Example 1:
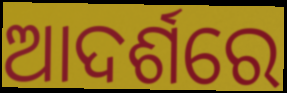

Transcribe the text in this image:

ଆଦର୍ଶରେ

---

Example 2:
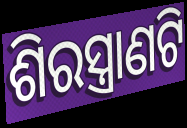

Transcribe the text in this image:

ଶିରସ୍ତ୍ରାଣଟି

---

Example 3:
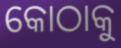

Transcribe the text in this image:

କୋଠାକୁ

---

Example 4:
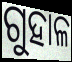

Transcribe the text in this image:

ଗୁହାଳ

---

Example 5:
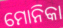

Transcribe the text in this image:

ମୋନିକା